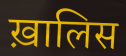
ख़ालिस